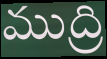
ముద్రి